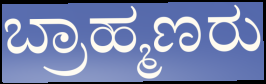
ಬ್ರಾಹ್ಮಣರು